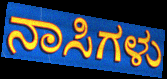
ನಾಸಿಗಳು